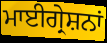
ਮਾਈਗ੍ਰੇਸ਼ਨਾਂ